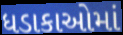
ધડાકાઓમાં